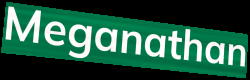
Meganathan